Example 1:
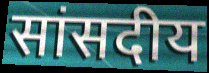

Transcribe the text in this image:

सांसदीय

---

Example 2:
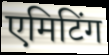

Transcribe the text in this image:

एमिटिंग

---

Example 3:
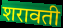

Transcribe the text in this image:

शरावती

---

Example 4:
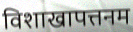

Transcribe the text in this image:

विशाखापत्तनम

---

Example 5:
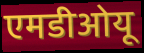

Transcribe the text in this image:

एमडीओयू